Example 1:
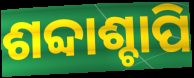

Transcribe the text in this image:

ଶବ୍ଦାଶ୍ଚାପି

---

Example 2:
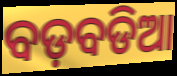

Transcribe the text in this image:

ବଡ଼ବଡିଆ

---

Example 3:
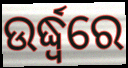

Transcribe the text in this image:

ଉର୍ଦ୍ଧ୍ଵରେ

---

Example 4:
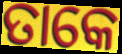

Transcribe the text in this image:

ତାକେ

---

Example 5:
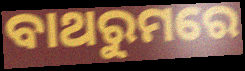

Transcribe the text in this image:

ବାଥରୁମରେ